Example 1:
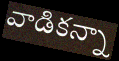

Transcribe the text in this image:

వాడికన్నా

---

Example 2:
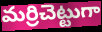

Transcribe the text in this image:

మర్రిచెట్టుగా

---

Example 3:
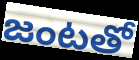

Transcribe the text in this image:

జంటతో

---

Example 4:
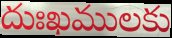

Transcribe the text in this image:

దుఃఖములకు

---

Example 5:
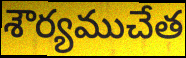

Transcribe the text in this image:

శౌర్యముచేత